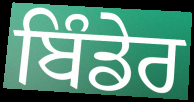
ਬਿੰਡੇਰ